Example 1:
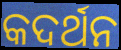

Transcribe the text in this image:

କଦର୍ଥନ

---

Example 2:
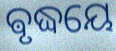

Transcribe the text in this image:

ଵୃଦ୍ଧୟେ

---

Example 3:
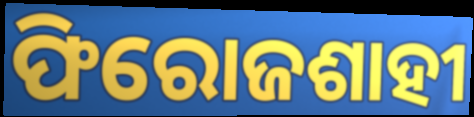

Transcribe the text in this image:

ଫିରୋଜଶାହୀ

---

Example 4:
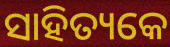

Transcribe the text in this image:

ସାହିତ୍ୟକେ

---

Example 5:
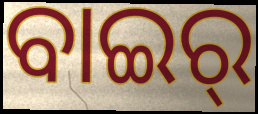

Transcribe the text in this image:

ବାଇର୍